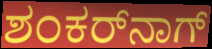
ಶಂಕರ್‌ನಾಗ್